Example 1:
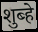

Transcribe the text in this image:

शुब्हे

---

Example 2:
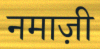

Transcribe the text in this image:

नमाज़ी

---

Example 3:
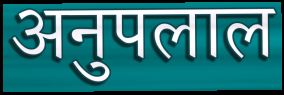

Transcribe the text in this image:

अनुपलाल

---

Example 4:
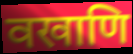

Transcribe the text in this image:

वखाणि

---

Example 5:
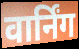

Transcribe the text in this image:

वार्निंग